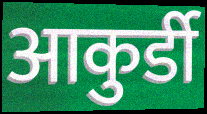
आकुर्डी